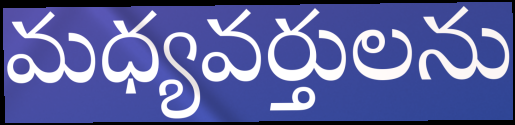
మధ్యవర్తులను